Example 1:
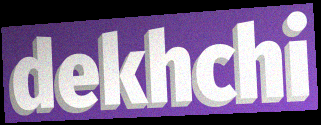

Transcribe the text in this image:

dekhchi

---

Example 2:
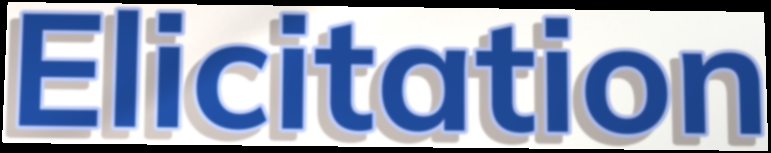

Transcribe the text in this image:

Elicitation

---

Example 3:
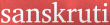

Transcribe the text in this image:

sanskruti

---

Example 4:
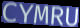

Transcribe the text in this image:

CYMRU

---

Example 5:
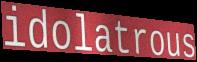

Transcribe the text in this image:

idolatrous